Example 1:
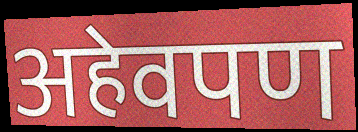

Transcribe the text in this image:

अहेवपण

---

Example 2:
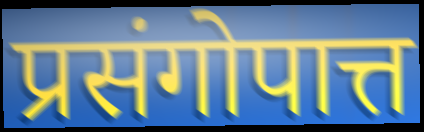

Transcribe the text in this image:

प्रसंगोपात्त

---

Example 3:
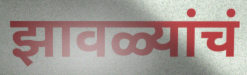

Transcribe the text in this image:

झावळ्यांचं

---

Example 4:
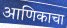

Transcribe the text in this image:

आणिकाचा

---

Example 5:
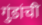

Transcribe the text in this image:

गुंडांची